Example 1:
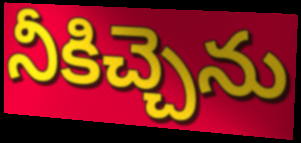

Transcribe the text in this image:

నీకిచ్చెను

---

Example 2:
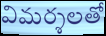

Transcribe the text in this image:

విమర్శలతో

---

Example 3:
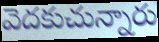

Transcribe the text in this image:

వెదకుచున్నారు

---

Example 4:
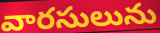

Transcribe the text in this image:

వారసులును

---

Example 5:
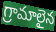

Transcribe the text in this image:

గ్రామాలైన